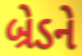
બ્રેડને